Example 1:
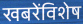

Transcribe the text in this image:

खबरेंविशेष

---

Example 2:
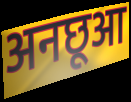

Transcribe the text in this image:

अनछूआ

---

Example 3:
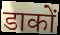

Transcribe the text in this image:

डाकों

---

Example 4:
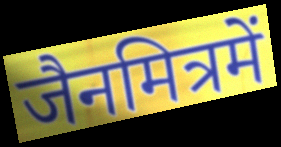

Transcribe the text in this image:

जैनमित्रमें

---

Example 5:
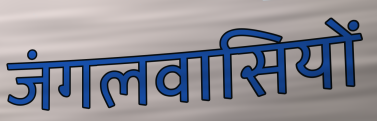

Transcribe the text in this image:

जंगलवासियों